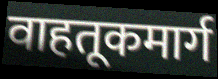
वाहतूकमार्ग